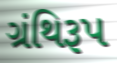
ગ્રંથિરૂપ